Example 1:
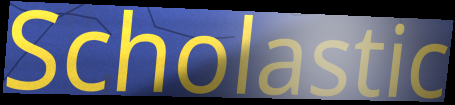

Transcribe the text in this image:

Scholastic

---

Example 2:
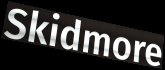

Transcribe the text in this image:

Skidmore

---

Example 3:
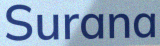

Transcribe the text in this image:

Surana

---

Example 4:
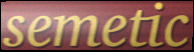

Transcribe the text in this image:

semetic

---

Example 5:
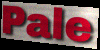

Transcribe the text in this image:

Pale